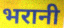
भरानी